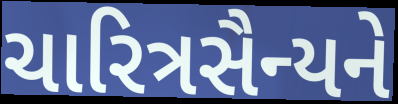
ચારિત્રસૈન્યને